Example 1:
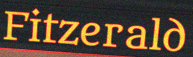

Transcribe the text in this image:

Fitzerald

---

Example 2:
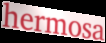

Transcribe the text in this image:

hermosa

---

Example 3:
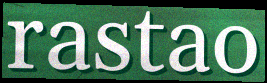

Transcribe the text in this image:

rastao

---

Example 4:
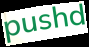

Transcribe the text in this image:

pushd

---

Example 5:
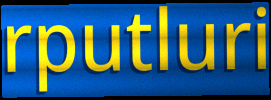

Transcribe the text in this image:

rputluri